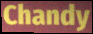
Chandy